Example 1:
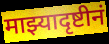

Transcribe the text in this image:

माझ्यादृष्टीनं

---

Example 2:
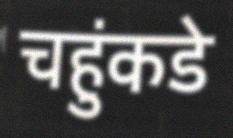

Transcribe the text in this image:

चहुंकडे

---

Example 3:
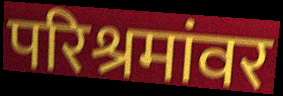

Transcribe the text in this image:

परिश्रमांवर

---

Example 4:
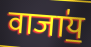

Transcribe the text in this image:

वाजा॑य॒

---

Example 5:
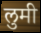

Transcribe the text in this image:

लुमी